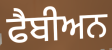
ਫੈਬੀਅਨ